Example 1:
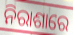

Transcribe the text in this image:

ନିରାଶାରେ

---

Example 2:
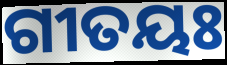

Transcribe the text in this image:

ଗୀତୟଃ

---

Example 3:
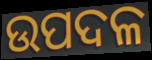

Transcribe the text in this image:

ଉପଦଳ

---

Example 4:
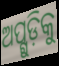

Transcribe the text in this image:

ଅପ୍ଗୁଡ଼ିକୁ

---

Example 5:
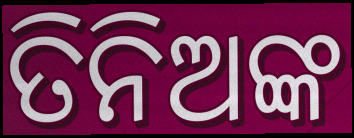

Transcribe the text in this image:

ତିନିଅଙ୍କ